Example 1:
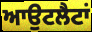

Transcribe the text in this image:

ਆਉਟਲੈਟਾਂ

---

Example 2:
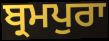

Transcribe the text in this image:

ਬ੍ਰਮਪੁਰਾ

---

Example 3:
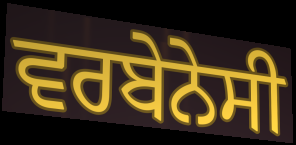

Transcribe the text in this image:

ਵਰਬੇਨੇਸੀ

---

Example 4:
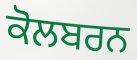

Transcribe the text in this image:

ਕੋਲਬਰਨ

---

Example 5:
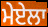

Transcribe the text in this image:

ਮੇਏਲਾ